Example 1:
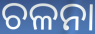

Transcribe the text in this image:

ଚଳନା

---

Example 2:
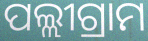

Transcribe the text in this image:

ପଲ୍ଲୀଗ୍ରାମ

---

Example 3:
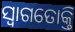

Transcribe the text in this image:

ସ୍ଵାଗତୋକ୍ତି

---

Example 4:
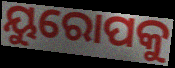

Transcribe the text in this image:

ୟୁରୋପକୁ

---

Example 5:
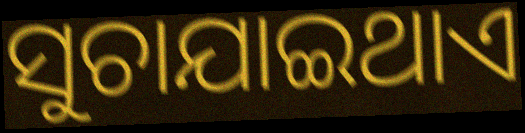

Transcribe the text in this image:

ସୁଚାଯାଇଥାଏ